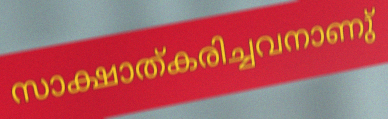
സാക്ഷാത്കരിച്ചവനാണു്